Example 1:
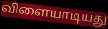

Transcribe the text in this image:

விளையாடியது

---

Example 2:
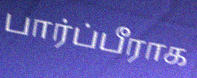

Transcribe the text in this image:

பார்ப்பீராக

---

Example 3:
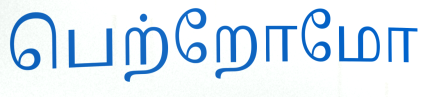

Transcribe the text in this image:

பெற்றோமோ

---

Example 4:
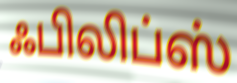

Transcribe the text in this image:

ஃபிலிப்ஸ்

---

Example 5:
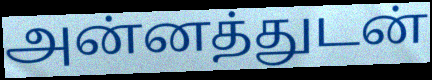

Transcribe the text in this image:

அன்னத்துடன்